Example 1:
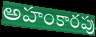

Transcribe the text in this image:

అహంకారపు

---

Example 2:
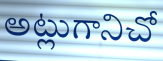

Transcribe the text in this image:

అట్లుగానిచో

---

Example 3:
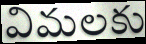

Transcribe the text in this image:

విమలకు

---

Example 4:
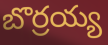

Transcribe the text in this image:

బొర్రయ్య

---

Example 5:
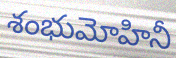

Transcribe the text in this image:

శంభుమోహినీ